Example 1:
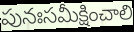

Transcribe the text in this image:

పునఃసమీక్షించాలి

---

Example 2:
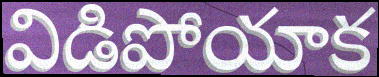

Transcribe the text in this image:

విడిపోయాక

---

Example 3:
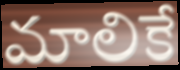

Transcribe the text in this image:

మాలికే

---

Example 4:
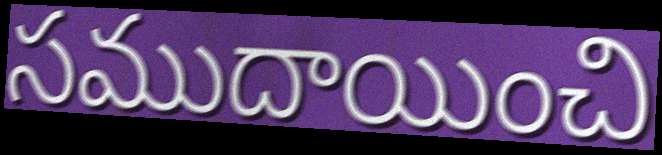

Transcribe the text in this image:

సముదాయించి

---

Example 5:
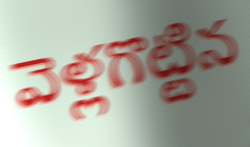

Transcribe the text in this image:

వెళ్లగొట్టిన